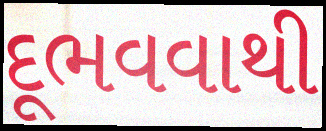
દૂભવવાથી